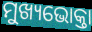
ମୁଖ୍ୟଭୋକ୍ତା